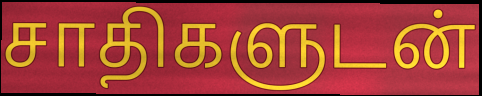
சாதிகளுடன்